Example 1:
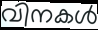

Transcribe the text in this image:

വിനകൾ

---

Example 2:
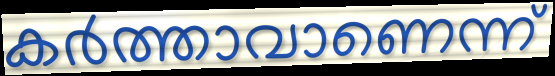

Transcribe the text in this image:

കർത്താവാണെന്ന്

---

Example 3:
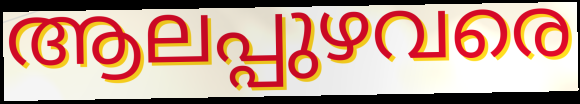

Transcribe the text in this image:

ആലപ്പുഴവരെ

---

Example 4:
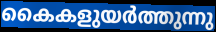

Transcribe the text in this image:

കൈകളുയർത്തുന്നു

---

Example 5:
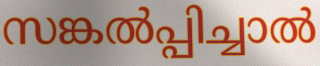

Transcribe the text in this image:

സങ്കൽപ്പിച്ചാൽ